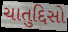
ચાતુદ્દિસો